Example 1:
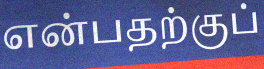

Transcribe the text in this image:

என்பதற்குப்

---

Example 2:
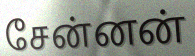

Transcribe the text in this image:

சேன்னன்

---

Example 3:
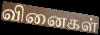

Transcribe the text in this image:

வினைகள்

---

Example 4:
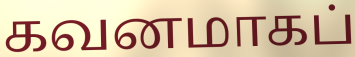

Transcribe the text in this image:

கவனமாகப்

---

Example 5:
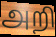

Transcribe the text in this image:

அறி